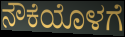
ನೌಕೆಯೊಳಗೆ